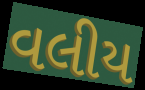
વલીય